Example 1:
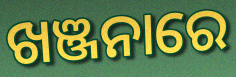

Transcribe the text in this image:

ଖଞ୍ଜନାରେ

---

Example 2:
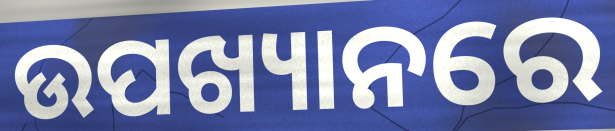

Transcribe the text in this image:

ଉପଖ୍ୟାନରେ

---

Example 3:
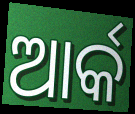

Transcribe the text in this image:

ଆର୍କ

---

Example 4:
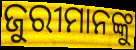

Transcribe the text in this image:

ଜୁରୀମାନଙ୍କୁ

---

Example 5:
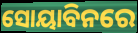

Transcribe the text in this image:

ସୋୟାବିନରେ